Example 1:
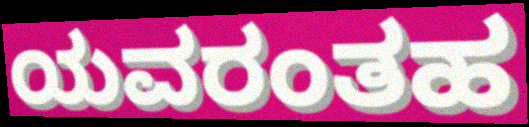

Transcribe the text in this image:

ಯವರಂತಹ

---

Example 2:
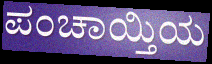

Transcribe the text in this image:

ಪಂಚಾಯ್ತಿಯ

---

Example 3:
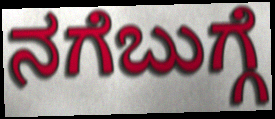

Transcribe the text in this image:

ನಗೆಬುಗ್ಗೆ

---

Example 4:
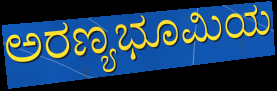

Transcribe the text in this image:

ಅರಣ್ಯಭೂಮಿಯ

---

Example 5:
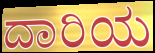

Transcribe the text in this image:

ದಾರಿಯ